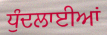
ਧੁੰਦਲਾਈਆਂ